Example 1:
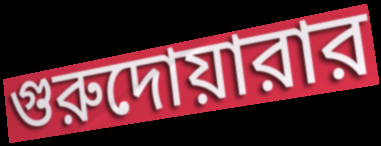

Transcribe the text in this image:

গুরুদোয়ারার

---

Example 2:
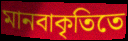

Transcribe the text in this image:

মানবাকৃতিতে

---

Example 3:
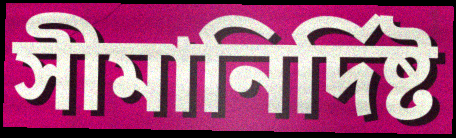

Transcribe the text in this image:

সীমানির্দিষ্ট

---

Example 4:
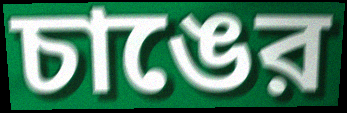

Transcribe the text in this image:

চাঙের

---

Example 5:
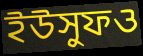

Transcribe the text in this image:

ইউসুফও